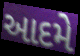
આદમે